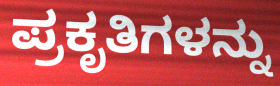
ಪ್ರಕೃತಿಗಳನ್ನು